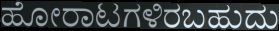
ಹೋರಾಟಗಳಿರಬಹುದು